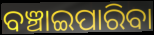
ବଞ୍ଚାଇପାରିବା